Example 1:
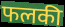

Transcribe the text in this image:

फलकी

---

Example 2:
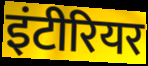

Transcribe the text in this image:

इंटीरियर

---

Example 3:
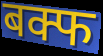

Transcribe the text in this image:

बक्फ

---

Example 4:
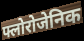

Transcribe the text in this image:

फ्लोरोजेनिक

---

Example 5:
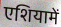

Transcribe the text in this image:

एशियामें